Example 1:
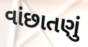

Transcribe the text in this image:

વાંછાતણું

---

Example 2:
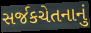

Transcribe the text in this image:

સર્જકચેતનાનું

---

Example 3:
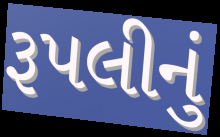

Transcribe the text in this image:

રૂપલીનું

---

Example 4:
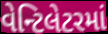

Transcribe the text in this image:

વેન્ટિલેટરમાં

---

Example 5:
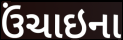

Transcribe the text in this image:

ઉંચાઇના